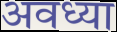
अवध्या